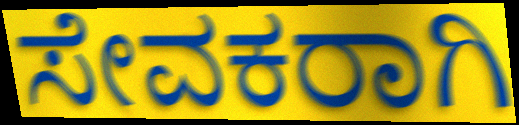
ಸೇವಕರಾಗಿ